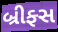
બ્રીફ્સ